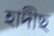
হাদীছ